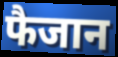
फैजान